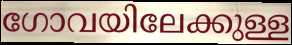
ഗോവയിലേക്കുള്ള